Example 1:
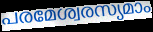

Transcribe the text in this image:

പരമേശ്വരസ്യമാം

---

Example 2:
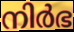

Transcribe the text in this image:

നിർഭ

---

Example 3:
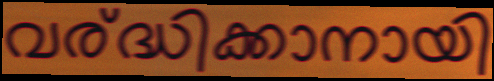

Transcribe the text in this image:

വര്ദ്ധിക്കാനായി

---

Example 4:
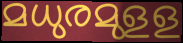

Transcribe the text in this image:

മധുരമുളള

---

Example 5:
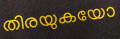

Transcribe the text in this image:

തിരയുകയോ